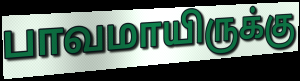
பாவமாயிருக்கு